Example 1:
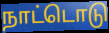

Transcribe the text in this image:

நாட்டொடு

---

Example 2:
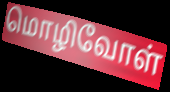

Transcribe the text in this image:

மொழிவோள்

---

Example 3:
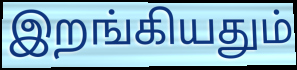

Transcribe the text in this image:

இறங்கியதும்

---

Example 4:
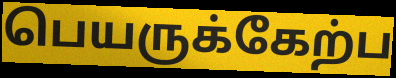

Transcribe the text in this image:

பெயருக்கேற்ப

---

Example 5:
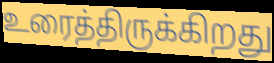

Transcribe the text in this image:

உரைத்திருக்கிறது